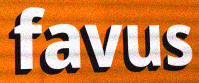
favus